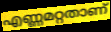
എണ്ണമറ്റതാണ്